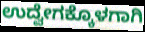
ಉದ್ವೇಗಕ್ಕೊಳಗಾಗಿ